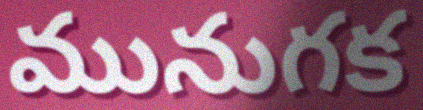
మునుగక